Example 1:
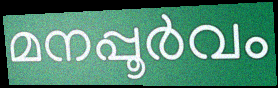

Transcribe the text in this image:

മനപ്പൂർവം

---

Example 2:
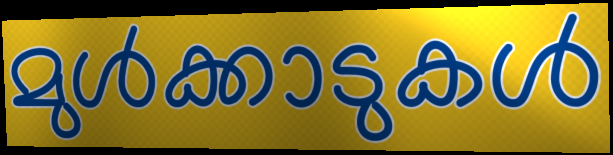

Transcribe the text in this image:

മുൾക്കാടുകൾ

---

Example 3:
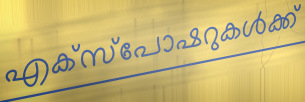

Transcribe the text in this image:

എക്സ്പോഷറുകൾക്ക്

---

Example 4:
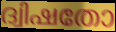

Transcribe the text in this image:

ദ്വിഷതോ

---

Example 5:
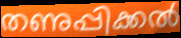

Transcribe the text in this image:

തണുപ്പിക്കൽ